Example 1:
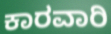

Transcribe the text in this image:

ಕಾರವಾರಿ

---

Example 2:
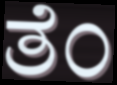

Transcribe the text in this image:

ತೆಂ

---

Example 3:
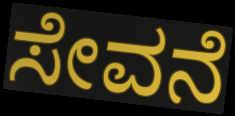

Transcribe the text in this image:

ಸೇವನೆ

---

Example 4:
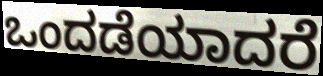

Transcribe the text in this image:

ಒಂದಡೆಯಾದರೆ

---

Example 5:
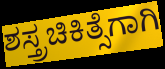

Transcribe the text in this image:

ಶಸ್ತ್ರಚಿಕಿತ್ಸೆಗಾಗಿ